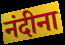
नंदीना